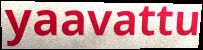
yaavattu